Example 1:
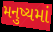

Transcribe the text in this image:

મનુષ્યમાં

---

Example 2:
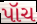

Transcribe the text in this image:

પૉચ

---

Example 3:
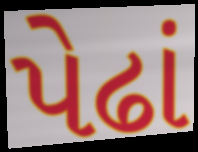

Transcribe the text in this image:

પેઢાં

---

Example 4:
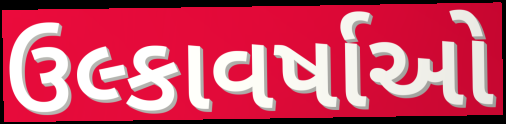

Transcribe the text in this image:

ઉલ્કાવર્ષાઓ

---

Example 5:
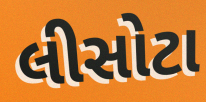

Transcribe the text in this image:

લીસોટા